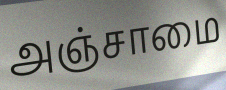
அஞ்சாமை